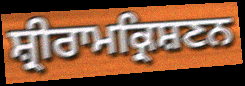
ਸ਼੍ਰੀਰਾਮਕ੍ਰਿਸ਼ਣਨ